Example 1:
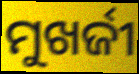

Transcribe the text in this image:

ମୁଖର୍ଜୀ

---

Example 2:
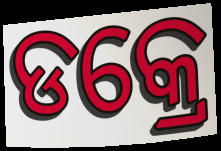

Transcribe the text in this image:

ଡକ୍ରେ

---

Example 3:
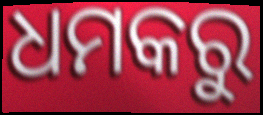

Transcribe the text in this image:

ଧମକରୁ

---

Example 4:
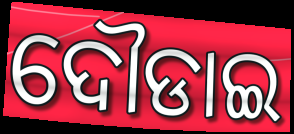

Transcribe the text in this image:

ଦୌଡାଇ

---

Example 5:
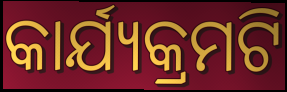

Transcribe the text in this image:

କାର୍ଯ୍ୟକ୍ରମଟି